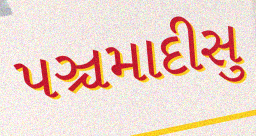
પઞ્ચમાદીસુ